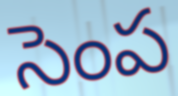
సెంప